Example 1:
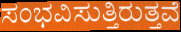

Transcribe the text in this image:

ಸಂಭವಿಸುತ್ತಿರುತ್ತವೆ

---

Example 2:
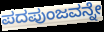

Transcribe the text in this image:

ಪದಪುಂಜವನ್ನೇ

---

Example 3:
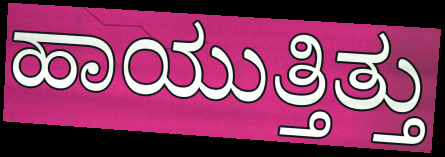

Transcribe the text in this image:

ಹಾಯುತ್ತಿತ್ತು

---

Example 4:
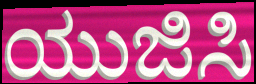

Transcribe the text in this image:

ಯುಜಿಸಿ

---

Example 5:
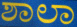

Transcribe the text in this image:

ಶಾಲಾ